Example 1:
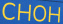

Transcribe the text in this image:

CHOH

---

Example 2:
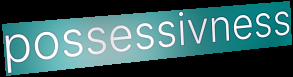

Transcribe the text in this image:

possessivness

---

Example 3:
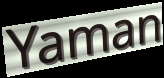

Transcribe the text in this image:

Yaman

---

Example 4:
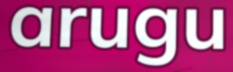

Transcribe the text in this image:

arugu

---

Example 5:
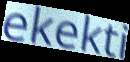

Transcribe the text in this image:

ekekti